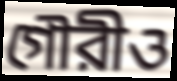
গৌরীও